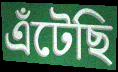
এঁটেছি